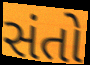
સંતો